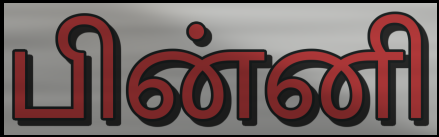
பின்னி